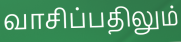
வாசிப்பதிலும்